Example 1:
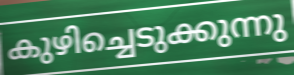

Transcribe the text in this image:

കുഴിച്ചെടുക്കുന്നു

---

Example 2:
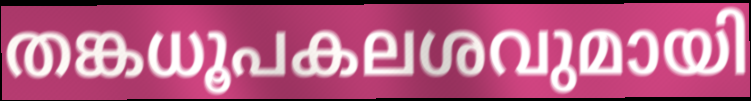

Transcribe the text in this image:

തങ്കധൂപകലശവുമായി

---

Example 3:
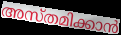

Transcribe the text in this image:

അസ്തമിക്കാൻ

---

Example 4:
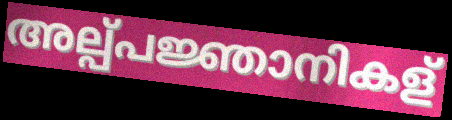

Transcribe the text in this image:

അല്പ്പജ്ഞാനികള്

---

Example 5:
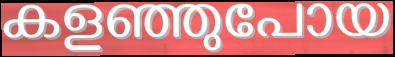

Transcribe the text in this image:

കളഞ്ഞുപോയ